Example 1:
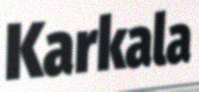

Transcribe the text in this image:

Karkala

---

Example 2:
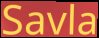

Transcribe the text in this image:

Savla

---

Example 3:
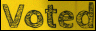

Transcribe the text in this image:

Voted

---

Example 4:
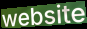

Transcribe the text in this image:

website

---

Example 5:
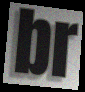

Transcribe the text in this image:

br